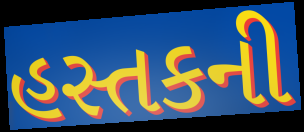
હસ્તકની